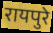
रायपुरे